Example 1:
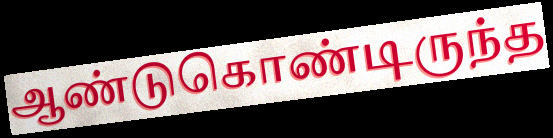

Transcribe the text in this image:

ஆண்டுகொண்டிருந்த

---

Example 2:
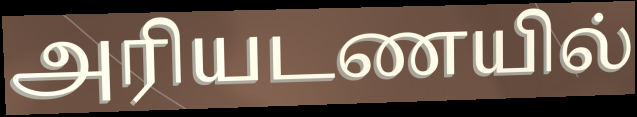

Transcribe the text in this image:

அரியடணயில்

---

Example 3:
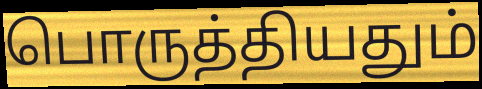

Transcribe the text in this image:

பொருத்தியதும்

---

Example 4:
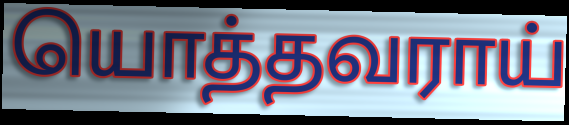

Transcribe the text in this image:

யொத்தவராய்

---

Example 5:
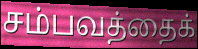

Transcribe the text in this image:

சம்பவத்தைக்